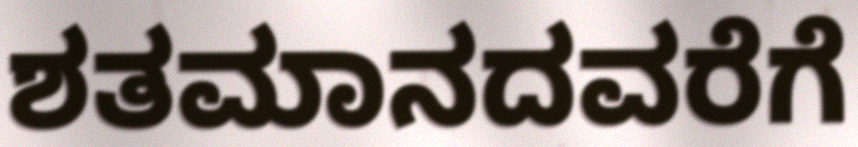
ಶತಮಾನದವರೆಗೆ